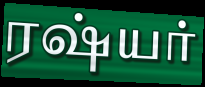
ரஷ்யர்